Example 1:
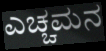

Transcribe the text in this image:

ಎಚ್ಚಮನ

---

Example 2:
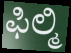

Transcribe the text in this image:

ಫಿಲ್ಮಿ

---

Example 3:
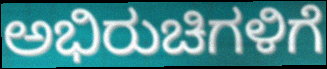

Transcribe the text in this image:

ಅಭಿರುಚಿಗಳಿಗೆ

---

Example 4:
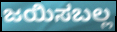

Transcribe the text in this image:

ಜಯಿಸಬಲ್ಲ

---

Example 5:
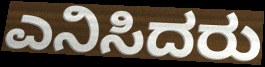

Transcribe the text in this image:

ಎನಿಸಿದರು